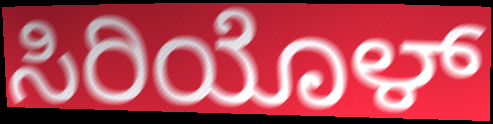
ಸಿರಿಯೊಳ್